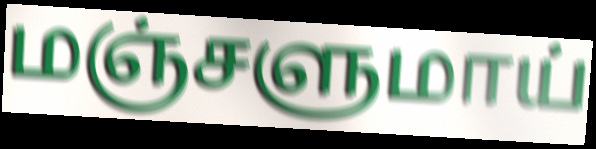
மஞ்சளுமாய்